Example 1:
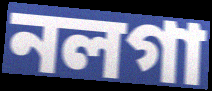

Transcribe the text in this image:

নলগা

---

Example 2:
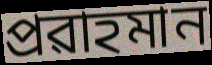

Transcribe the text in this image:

প্ৰৱাহমান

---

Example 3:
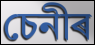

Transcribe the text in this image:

চেনীৰ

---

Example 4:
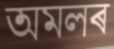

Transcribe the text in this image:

অমলৰ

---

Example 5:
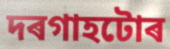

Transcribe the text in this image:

দৰগাহটোৰ